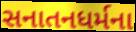
સનાતનધર્મના